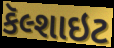
કૅલ્શાઇટ